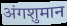
अंगशुमान